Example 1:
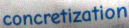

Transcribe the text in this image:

concretization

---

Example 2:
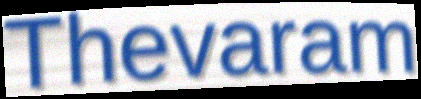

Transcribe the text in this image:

Thevaram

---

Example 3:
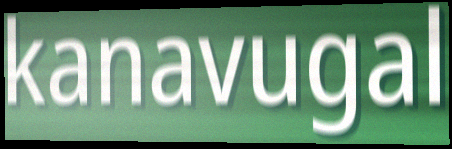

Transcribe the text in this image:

kanavugal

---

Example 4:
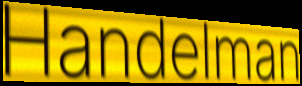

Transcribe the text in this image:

Handelman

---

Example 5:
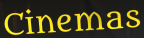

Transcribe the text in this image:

Cinemas